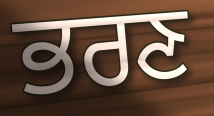
ਭਰਣ